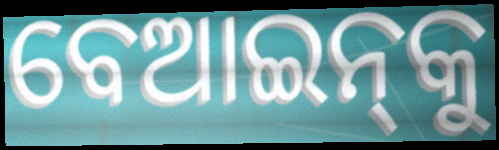
ବେଆଇନ୍‌କୁ